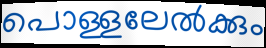
പൊള്ളലേൽക്കും